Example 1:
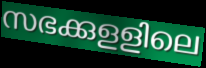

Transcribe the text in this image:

സഭക്കുളളിലെ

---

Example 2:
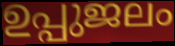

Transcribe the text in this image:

ഉപ്പുജലം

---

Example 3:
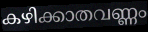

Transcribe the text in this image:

കഴിക്കാതവണ്ണം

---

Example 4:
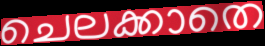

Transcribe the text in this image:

ചെലക്കാതെ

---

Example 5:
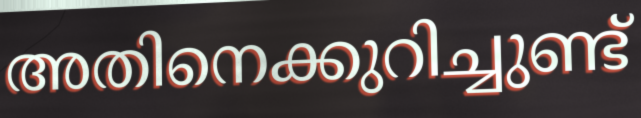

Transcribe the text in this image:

അതിനെക്കുറിച്ചുണ്ട്